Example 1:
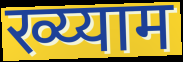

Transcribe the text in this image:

ख्य्याम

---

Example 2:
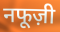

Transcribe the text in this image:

नफूज़ी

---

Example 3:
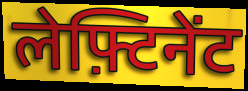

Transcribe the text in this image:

लेफ़्टिनेंट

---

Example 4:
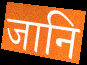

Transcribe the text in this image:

जानि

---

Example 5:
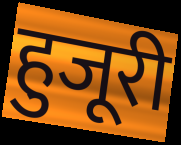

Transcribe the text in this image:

हुजूरी